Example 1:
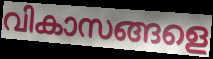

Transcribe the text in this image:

വികാസങ്ങളെ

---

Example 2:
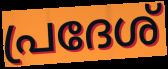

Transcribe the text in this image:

പ്രദേശ്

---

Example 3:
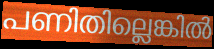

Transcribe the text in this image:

പണിതില്ലെങ്കിൽ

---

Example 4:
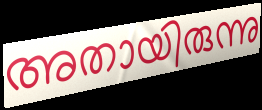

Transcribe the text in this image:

അതായിരുന്നു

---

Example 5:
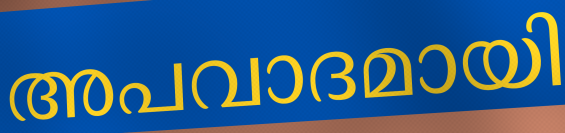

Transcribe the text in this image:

അപവാദമായി